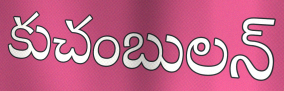
కుచంబులన్